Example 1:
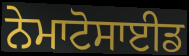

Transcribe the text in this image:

ਨੇਮਾਟੋਸਾਈਡ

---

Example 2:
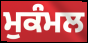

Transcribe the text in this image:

ਮੁਕੰਮਲ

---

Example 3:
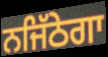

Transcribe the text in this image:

ਨਜਿੱਠੇਗਾ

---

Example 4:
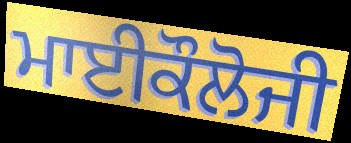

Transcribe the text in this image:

ਮਾਈਕੌਲੋਜੀ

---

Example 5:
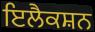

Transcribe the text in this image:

ਇਲੈਕਸ਼ਨ